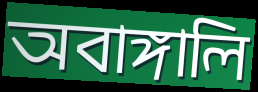
অবাঙ্গালি